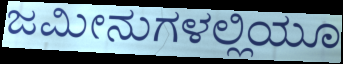
ಜಮೀನುಗಳಲ್ಲಿಯೂ